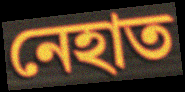
নেহাত